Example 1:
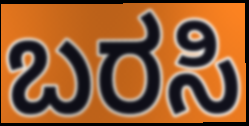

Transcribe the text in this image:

ಬರಸಿ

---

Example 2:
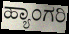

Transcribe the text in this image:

ಹ್ಯಾಂಗರಿ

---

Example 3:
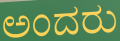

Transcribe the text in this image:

ಅಂದರು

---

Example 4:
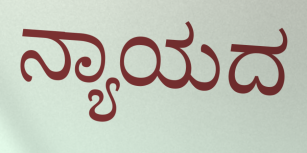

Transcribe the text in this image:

ನ್ಯಾಯದ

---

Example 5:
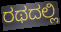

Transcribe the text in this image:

ರಥದಲ್ಲಿ